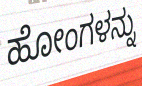
ಹೋಂಗಳನ್ನು